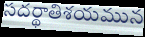
సదర్థాతిశయమున